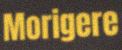
Morigere